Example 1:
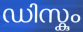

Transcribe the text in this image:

ഡിസ്കും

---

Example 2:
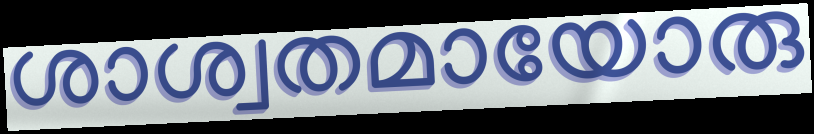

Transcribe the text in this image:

ശാശ്വതമായോരു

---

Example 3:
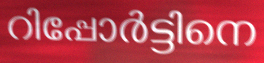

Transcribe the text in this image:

റിപ്പോർട്ടിനെ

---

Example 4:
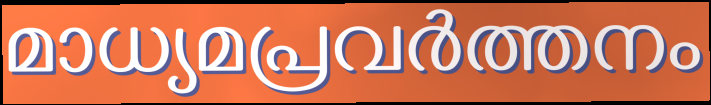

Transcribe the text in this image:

മാധ്യമപ്രവർത്തനം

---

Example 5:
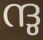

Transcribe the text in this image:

ന്ദു